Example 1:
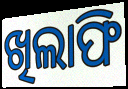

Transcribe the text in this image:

ଖିଲାଫି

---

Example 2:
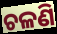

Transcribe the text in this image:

ଚଳଣି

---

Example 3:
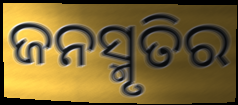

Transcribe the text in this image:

ଜନସ୍ମୃତିର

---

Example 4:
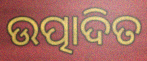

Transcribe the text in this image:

ଉତ୍ପାଦିତ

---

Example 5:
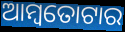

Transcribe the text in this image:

ଆମ୍ବତୋଟାର